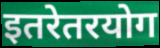
इतरेतरयोग